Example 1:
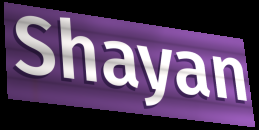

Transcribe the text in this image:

Shayan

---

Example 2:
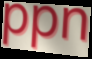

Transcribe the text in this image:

ppn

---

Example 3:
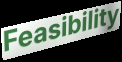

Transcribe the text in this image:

Feasibility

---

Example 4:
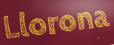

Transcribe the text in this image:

Llorona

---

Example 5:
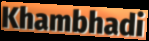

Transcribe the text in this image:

Khambhadi